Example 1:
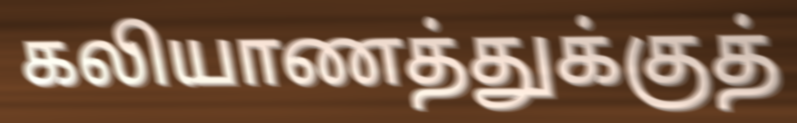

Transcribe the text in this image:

கலியாணத்துக்குத்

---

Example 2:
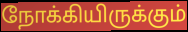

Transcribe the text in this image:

நோக்கியிருக்கும்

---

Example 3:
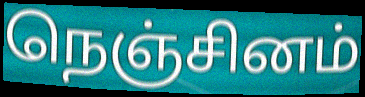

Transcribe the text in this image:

நெஞ்சினம்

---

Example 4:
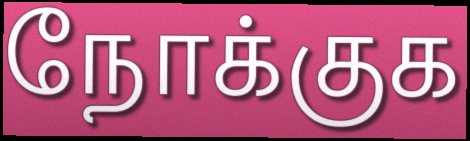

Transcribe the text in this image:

நோக்குக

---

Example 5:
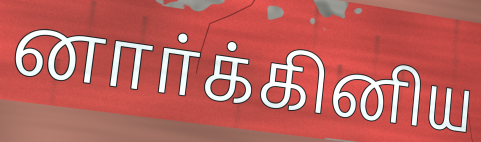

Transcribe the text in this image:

னார்க்கினிய